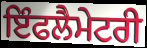
ਇੰਫਲੈਮੇਟਰੀ